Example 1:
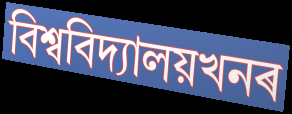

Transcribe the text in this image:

বিশ্ববিদ্যালয়খনৰ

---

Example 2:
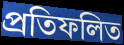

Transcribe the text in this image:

প্ৰতিফলিত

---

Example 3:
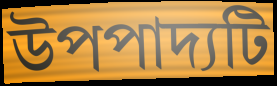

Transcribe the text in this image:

উপপাদ্যটি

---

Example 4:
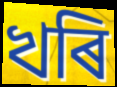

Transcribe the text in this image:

খৰি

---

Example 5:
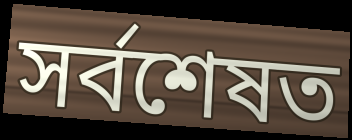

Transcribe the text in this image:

সৰ্বশেষত